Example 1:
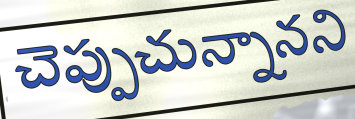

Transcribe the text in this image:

చెప్పుచున్నానని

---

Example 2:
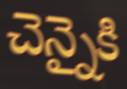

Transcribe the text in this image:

చెన్నైకి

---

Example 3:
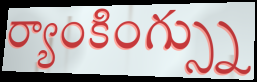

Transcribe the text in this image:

ర్యాంకింగ్స్ను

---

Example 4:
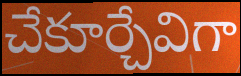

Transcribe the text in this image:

చేకూర్చేవిగా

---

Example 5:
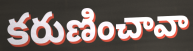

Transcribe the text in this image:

కరుణించావా